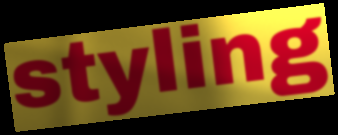
styling